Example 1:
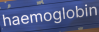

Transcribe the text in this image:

haemoglobin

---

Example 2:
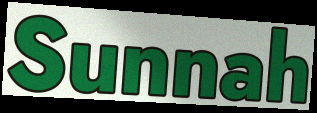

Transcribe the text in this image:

Sunnah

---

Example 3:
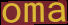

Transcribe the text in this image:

oma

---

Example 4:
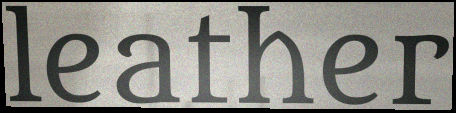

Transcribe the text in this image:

leather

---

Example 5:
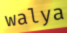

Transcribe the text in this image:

walya